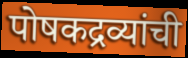
पोषकद्रव्यांची